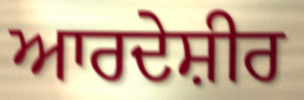
ਆਰਦੇਸ਼ੀਰ